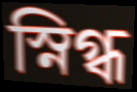
স্নিগ্ধ